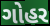
ગોહર